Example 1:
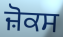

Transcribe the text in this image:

ਜ਼ੋਕਸ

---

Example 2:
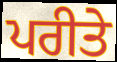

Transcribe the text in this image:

ਪਰੀਤੇ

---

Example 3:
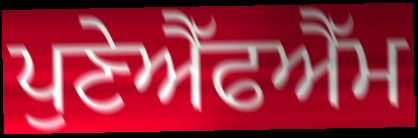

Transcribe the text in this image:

ਪੁਣੇਐੱਫਐੱਮ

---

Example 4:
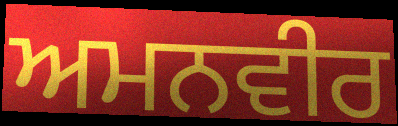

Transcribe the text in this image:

ਅਮਨਵੀਰ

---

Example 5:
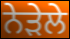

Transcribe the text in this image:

ਨੇੜੇਲੇ